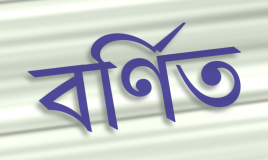
বর্ণিত